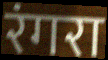
रंगरा